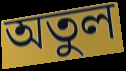
অতুল